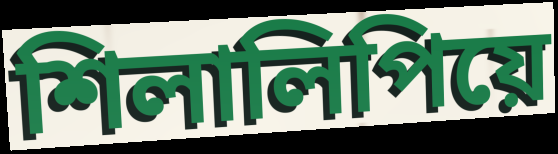
শিলালিপিয়ে